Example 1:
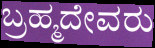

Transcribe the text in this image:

ಬ್ರಹ್ಮದೇವರು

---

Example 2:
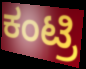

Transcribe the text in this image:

ಕಂಟ್ರಿ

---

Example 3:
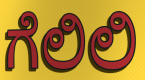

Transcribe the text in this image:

ಗೆಲಿಲಿ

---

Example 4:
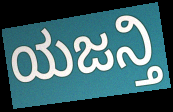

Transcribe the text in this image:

ಯಜನ್ತಿ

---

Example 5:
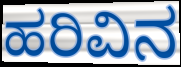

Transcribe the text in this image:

ಹರಿವಿನ